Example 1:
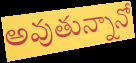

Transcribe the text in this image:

అవుతున్నానో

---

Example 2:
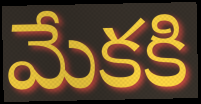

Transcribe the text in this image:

మేకకి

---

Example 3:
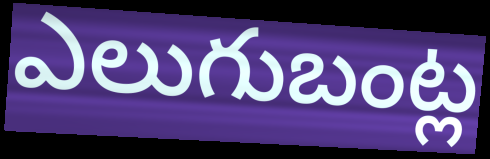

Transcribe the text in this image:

ఎలుగుబంట్ల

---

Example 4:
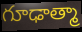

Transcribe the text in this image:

గూఢాత్మా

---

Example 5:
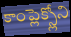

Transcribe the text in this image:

కాంప్లెక్స్లోని